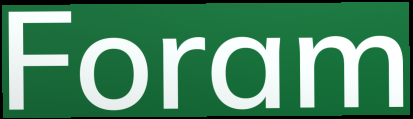
Foram